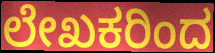
ಲೇಖಕರಿಂದ